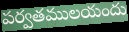
పర్వతములయందు